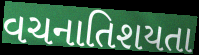
વચનાતિશયતા